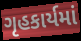
ગૃહકાર્યમાં